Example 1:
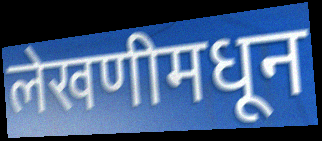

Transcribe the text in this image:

लेखणीमधून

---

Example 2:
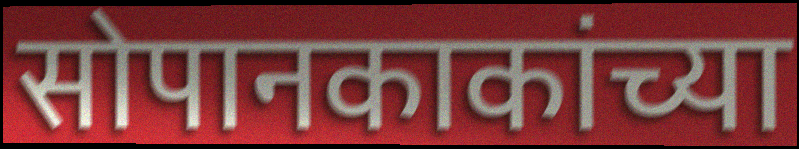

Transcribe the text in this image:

सोपानकाकांच्या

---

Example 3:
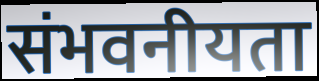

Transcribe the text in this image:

संभवनीयता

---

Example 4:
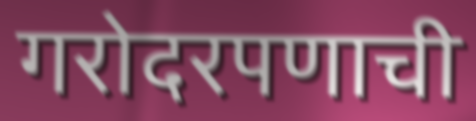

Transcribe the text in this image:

गरोदरपणाची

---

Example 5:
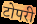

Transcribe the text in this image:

टोपरी